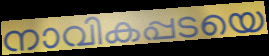
നാവികപ്പടയെ